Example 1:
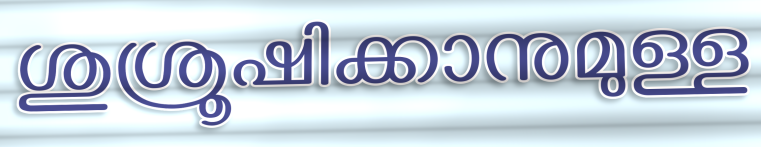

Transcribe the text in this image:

ശുശ്രൂഷിക്കാനുമുള്ള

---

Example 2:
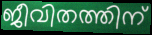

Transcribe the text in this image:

ജീവിതത്തിന്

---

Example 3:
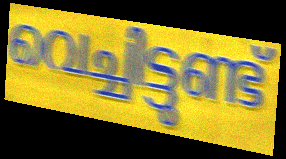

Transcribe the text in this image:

വെച്ചിട്ടുണ്ട്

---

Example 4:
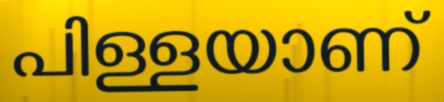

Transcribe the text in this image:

പിള്ളയാണ്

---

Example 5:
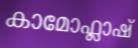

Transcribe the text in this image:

കാമോഫ്ലാഷ്